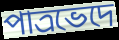
পাত্রভেদে